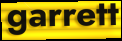
garrett